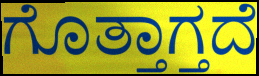
ಗೊತ್ತಾಗ್ತದೆ